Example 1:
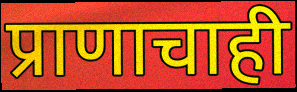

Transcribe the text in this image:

प्राणाचाही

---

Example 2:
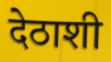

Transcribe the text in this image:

देठाशी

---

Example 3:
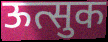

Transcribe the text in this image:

ऊत्सुक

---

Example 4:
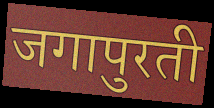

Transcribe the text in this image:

जगापुरती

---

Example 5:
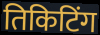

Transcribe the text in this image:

तिकिटिंग